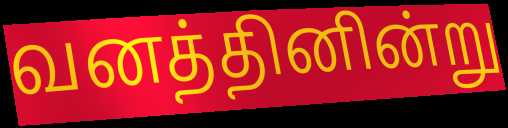
வனத்தினின்று